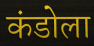
कंडोला